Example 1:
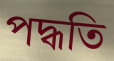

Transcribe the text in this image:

পদ্ধতি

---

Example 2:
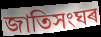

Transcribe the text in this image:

জাতিসংঘৰ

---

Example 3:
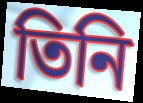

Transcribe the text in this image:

তিনি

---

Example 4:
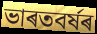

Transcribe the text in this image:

ভাৰতবৰ্ষৰ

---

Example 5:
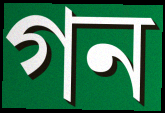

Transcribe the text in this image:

গন